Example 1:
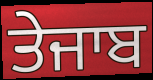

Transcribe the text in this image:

ਤੇਜਾਬ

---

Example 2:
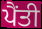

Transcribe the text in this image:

ਪੈਂਤੀ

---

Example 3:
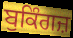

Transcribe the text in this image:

ਬੁਕਿੰਗਜ਼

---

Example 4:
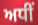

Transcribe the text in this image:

ਅਧੀਂ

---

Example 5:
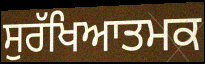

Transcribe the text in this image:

ਸੁਰੱਖਿਆਤਮਕ